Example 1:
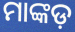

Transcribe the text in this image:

ମାଙ୍କଡ଼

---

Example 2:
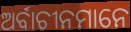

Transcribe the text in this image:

ଅର୍ବାଚୀନମାନେ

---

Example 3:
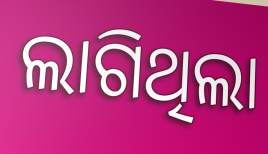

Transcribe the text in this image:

ଲାଗିଥିଲା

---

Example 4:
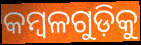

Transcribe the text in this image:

କମ୍ବଳଗୁଡ଼ିକୁ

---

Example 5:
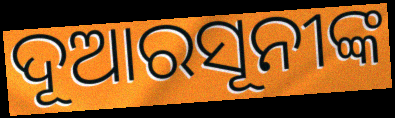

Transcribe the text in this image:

ଦୂଆରସୂନୀଙ୍କ